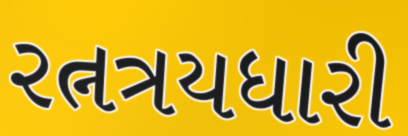
રત્નત્રયધારી